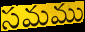
సమము